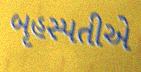
બૃહસ્પતીએ